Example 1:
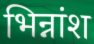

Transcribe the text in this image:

भिन्नांश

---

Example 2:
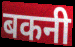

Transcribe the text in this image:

बकनी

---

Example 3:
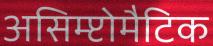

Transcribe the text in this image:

असिम्प्टोमैटिक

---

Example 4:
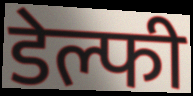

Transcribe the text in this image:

डेल्फी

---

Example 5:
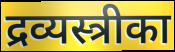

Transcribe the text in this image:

द्रव्यस्त्रीका